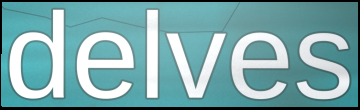
delves